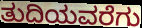
ತುದಿಯವರೆಗು